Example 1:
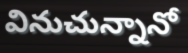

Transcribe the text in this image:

వినుచున్నానో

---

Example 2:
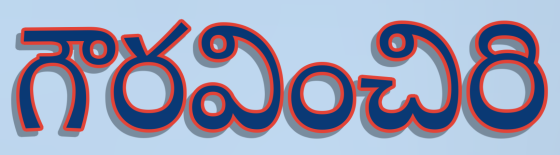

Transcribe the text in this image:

గౌరవించిరి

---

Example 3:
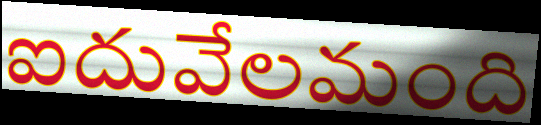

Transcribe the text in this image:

ఐదువేలమంది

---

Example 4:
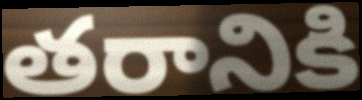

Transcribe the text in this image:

తరానికి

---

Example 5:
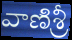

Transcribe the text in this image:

వాణిశ్రీ